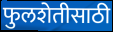
फुलशेतीसाठी